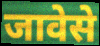
जावेसे